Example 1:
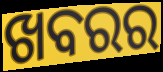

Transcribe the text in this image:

ଖବରର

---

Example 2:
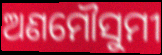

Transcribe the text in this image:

ଅଣମୌସୁମୀ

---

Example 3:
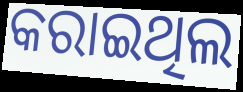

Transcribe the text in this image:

କରାଇଥିଲ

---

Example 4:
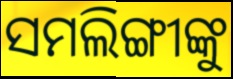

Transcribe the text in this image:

ସମଲିଙ୍ଗୀଙ୍କୁ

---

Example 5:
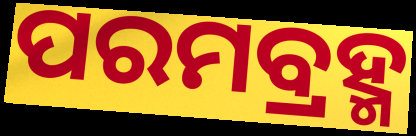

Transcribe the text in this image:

ପରମବ୍ରହ୍ମ